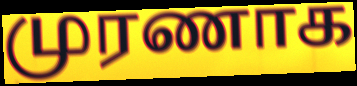
முரணாக